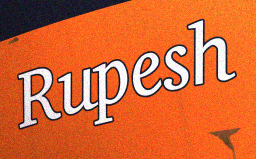
Rupesh